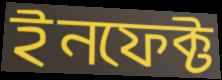
ইনফেক্ট